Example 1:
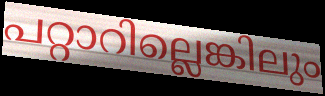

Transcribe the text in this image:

പറ്റാറില്ലെങ്കിലും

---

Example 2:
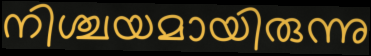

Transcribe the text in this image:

നിശ്ചയമായിരുന്നു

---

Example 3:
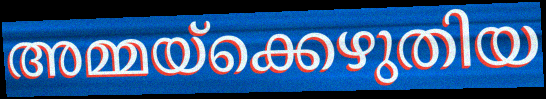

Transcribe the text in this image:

അമ്മയ്ക്കെഴുതിയ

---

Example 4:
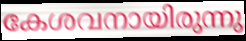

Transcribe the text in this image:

കേശവനായിരുന്നു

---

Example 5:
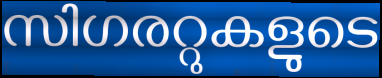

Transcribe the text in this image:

സിഗരറ്റുകളുടെ